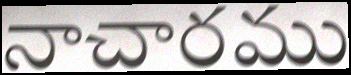
నాచారము